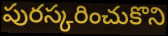
పురస్కరించుకొని